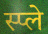
स्प्ले